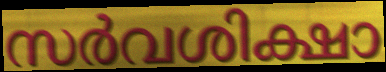
സർവശിക്ഷാ